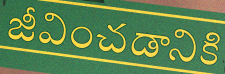
జీవించడానికి